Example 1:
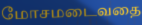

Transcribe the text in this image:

மோசமடைவதை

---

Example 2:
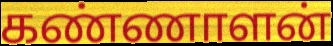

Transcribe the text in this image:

கண்ணாளன்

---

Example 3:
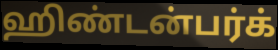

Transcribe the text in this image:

ஹிண்டன்பர்க்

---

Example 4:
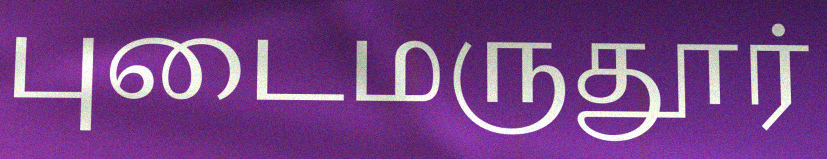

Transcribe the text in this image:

புடைமருதூர்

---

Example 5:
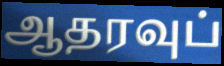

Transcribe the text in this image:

ஆதரவுப்